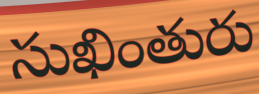
సుఖింతురు